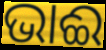
ଭାଈ